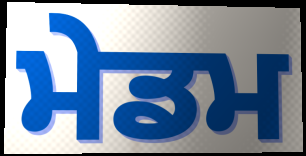
ਮੇਡਮ